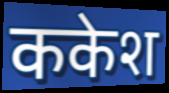
ककेश